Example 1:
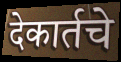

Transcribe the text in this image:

देकार्तचे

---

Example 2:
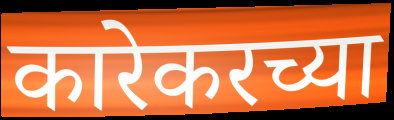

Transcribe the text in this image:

कारेकरच्या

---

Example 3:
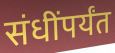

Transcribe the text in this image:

संधींपर्यंत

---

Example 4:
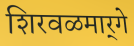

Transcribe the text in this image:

शिरवळमार्गे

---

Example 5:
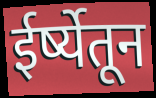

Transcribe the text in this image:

ईर्ष्येतून